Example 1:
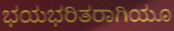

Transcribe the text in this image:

ಭಯಭರಿತರಾಗಿಯೂ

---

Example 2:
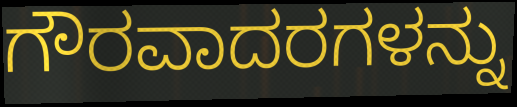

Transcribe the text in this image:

ಗೌರವಾದರಗಳನ್ನು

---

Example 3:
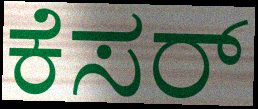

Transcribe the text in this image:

ಕೆಸರ್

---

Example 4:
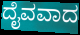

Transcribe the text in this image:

ದೈವವಾದ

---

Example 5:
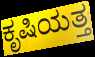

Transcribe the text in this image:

ಕೃಷಿಯತ್ತ